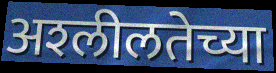
अश्‍लीलतेच्या